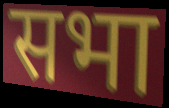
सभा